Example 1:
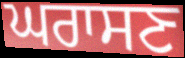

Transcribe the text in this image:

ਘਰਾਸਣ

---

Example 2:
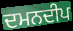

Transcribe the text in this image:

ਦਮਨਦੀਪ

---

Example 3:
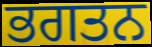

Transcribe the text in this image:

ਭਗਤਨ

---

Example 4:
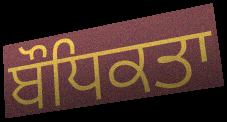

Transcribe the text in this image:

ਬੌਧਿਕਤਾ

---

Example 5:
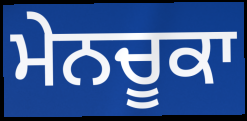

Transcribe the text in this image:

ਮੇਨਚੂਕਾ